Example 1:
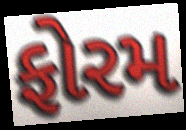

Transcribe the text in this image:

ફોરમ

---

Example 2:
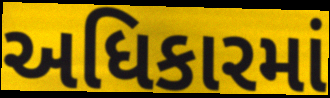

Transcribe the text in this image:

અધિકારમાં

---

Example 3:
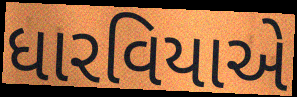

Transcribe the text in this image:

ધારવિયાએ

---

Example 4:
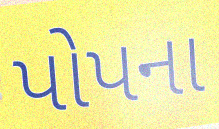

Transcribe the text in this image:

પોપના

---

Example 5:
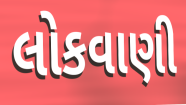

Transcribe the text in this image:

લોકવાણી